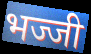
भज्जी